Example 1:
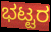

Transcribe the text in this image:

ಭಟ್ಟರ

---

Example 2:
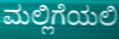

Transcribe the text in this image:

ಮಲ್ಲಿಗೆಯಲಿ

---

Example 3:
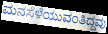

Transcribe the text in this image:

ಮನಸೆಳೆಯುವಂತಿದ್ದವು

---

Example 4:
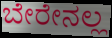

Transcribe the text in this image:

ಬೇರೇನಲ್ಲ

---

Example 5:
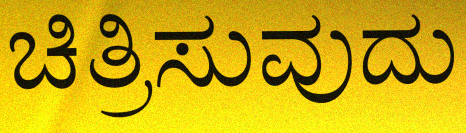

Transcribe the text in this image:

ಚಿತ್ರಿಸುವುದು